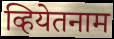
व्हियेतनाम